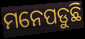
ମନେପଡୁଛି